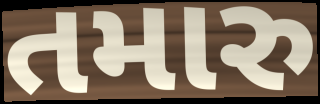
તમારુ